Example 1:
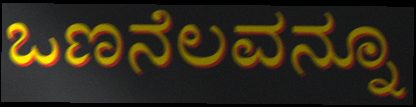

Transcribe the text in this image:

ಒಣನೆಲವನ್ನೂ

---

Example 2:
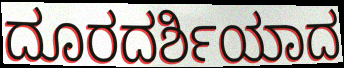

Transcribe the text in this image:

ದೂರದರ್ಶಿಯಾದ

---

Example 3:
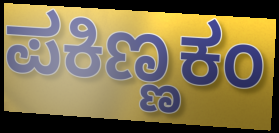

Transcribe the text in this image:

ಪಕಿಣ್ಣಕಂ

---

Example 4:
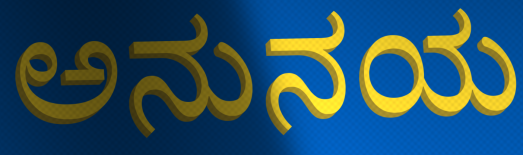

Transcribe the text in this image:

ಅನುನಯ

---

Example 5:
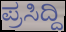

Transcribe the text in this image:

ಪ್ರಸಿದ್ದಿ